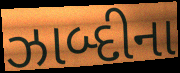
ઝાબ્દીના